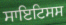
ਸਾਇਟਿਸਸ